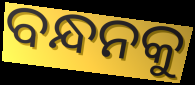
ବନ୍ଧନକୁ